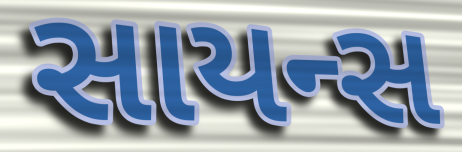
સાયન્સ